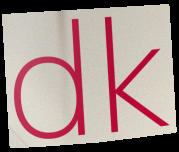
dk